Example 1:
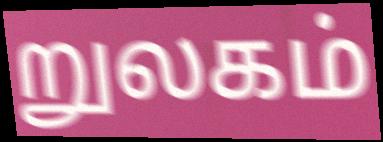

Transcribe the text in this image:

றுலகம்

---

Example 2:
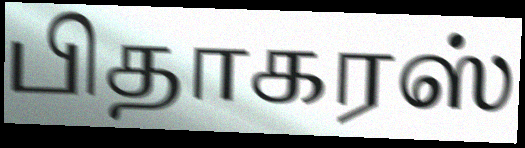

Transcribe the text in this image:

பிதாகரஸ்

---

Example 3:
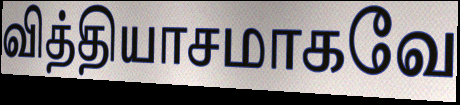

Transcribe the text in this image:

வித்தியாசமாகவே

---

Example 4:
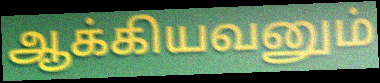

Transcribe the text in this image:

ஆக்கியவனும்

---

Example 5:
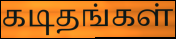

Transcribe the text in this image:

கடிதங்கள்